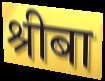
श्रीबा